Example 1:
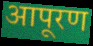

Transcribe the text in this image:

आपूरण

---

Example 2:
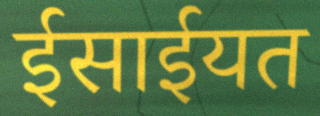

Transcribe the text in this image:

ईसाईयत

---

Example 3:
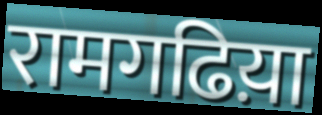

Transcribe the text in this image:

रामगढिय़ा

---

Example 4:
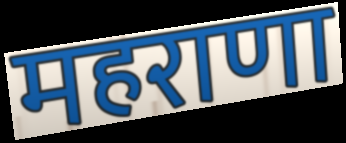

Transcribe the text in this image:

महराणा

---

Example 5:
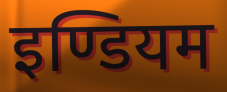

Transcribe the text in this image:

इण्डियम